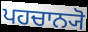
ਪਹਚਾਨ੍ਯੋ